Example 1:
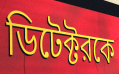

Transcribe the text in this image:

ডিটেক্টরকে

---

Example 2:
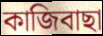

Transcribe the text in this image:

কাজিবাছা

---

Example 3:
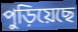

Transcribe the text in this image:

পুড়িয়েছে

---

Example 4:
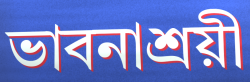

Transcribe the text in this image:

ভাবনাশ্রয়ী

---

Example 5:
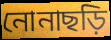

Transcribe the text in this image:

নোনাছড়ি